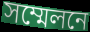
সম্মেলনে